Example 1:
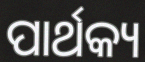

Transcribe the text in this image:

ପାର୍ଥକ୍ୟ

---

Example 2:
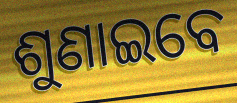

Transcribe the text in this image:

ଶୁଣାଇବେ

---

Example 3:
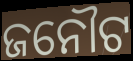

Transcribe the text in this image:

ଜନୌଟ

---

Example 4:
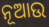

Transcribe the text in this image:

ନୂଆଉ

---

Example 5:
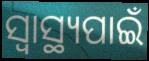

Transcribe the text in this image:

ସ୍ଵାସ୍ଥ୍ୟପାଇଁ